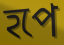
হপে